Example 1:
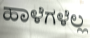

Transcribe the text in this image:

ಹಾಳೆಗಳೆಲ್ಲ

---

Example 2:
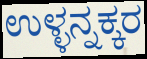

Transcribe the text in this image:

ಉಳ್ಳನ್ನಕ್ಕರ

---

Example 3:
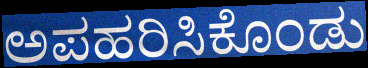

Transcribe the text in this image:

ಅಪಹರಿಸಿಕೊಂಡು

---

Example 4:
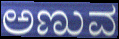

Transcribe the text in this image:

ಅಣುವ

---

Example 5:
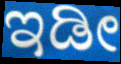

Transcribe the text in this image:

ಇಡೀ